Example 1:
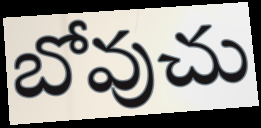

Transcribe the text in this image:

బోవుచు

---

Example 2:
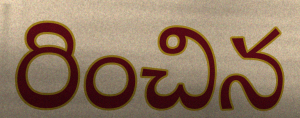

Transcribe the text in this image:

రించిన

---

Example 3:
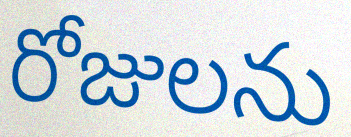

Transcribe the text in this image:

రోజులను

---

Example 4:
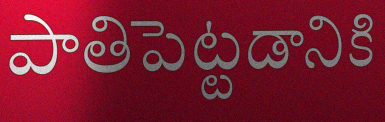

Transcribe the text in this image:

పాతిపెట్టడానికి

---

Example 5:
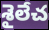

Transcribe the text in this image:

శైలేచ